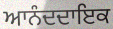
ਆਨੰਦਦਾਇਕ